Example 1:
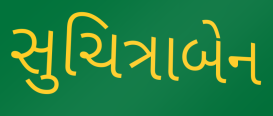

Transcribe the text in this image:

સુચિત્રાબેન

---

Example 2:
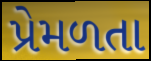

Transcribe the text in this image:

પ્રેમળતા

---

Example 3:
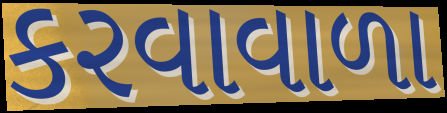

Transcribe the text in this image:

કરવાવાળા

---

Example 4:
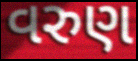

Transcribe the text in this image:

વરુણ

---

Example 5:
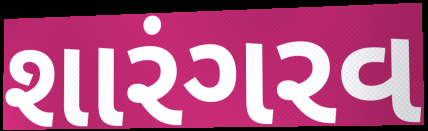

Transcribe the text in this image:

શારંગરવ